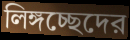
লিঙ্গচ্ছেদের